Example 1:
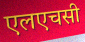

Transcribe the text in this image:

एलएचसी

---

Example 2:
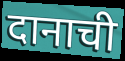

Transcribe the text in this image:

दानाची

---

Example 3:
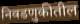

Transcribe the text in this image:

निवडणुकीतील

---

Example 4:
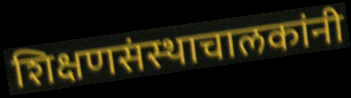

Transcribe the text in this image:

शिक्षणसंस्थाचालकांनी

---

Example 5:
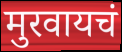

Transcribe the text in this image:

मुरवायचं